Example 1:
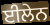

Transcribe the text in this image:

ਈਲੇਨ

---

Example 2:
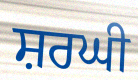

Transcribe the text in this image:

ਸ਼ਰਘੀ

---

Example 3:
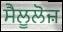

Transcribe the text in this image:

ਸੈਲੂਲੋਜ਼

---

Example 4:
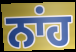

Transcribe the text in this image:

ਨਾਂਹ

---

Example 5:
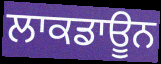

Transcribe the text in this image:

ਲਾਕਡਾਊਨ